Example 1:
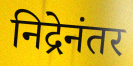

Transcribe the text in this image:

निद्रेनंतर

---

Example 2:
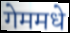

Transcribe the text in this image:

गेममधे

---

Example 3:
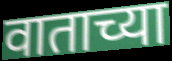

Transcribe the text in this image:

वाताच्या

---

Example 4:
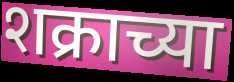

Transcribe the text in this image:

शक्राच्या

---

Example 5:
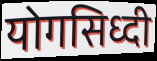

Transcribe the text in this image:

योगसिध्दी